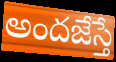
అందజేస్తే